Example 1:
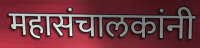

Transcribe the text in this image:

महासंचालकांनी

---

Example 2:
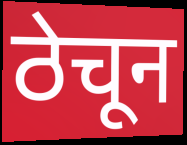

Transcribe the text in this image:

ठेचून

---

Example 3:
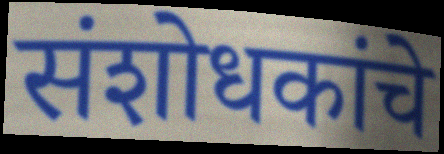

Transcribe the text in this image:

संशोधकांचे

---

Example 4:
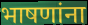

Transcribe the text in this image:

भाषणांना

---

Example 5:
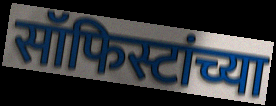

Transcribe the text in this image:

सॉफिस्टांच्या